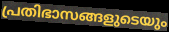
പ്രതിഭാസങ്ങളുടെയും